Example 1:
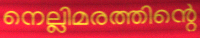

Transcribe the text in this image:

നെല്ലിമരത്തിന്റെ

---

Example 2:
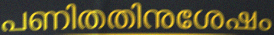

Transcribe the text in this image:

പണിതതിനുശേഷം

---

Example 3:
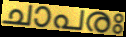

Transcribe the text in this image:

ചാപരഃ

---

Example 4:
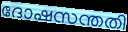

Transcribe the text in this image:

ദോഷസന്തതി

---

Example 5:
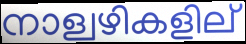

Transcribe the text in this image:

നാള്വഴികളില്